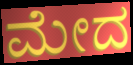
ಮೇದ